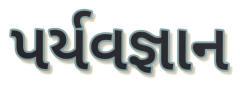
પર્યવજ્ઞાન